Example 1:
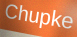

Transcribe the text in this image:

Chupke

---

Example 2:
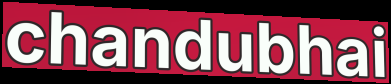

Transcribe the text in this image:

chandubhai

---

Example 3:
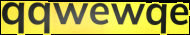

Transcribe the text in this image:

qqwewqe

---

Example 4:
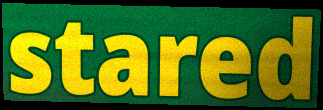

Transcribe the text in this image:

stared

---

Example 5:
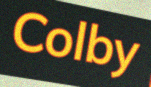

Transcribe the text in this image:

Colby